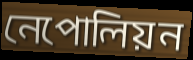
নেপোলিয়ন